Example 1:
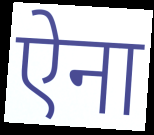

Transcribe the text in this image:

ऐना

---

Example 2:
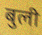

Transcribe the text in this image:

बुली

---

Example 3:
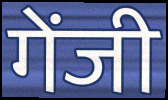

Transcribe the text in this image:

गेंजी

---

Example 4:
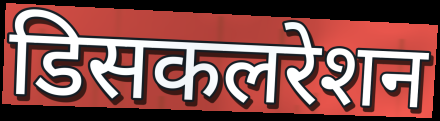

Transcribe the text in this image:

डिसकलरेशन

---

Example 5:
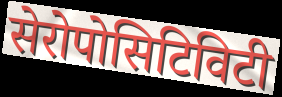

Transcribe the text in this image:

सेरोपोसिटिविटी